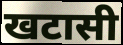
खटासी